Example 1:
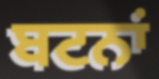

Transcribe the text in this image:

ਬਟਨਾਂ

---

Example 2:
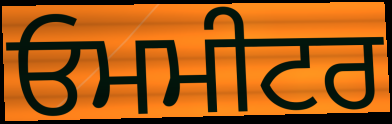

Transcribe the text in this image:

ਓਮਮੀਟਰ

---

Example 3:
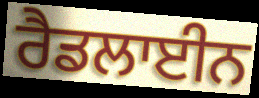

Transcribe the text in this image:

ਰੈਡਲਾਈਨ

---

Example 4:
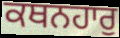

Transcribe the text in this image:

ਕਥਨਹਾਰੁ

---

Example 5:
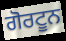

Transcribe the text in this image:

ਗੋਰਟੂਨ